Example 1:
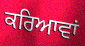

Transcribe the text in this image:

ਕਰਿਆਵਾਂ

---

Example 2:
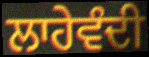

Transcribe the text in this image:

ਲਾਹੇਵੰਦੀ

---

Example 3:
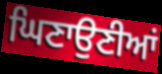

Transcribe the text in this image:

ਘਿਣਾਉਣੀਆਂ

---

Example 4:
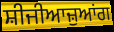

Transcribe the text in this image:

ਸ਼ੀਜੀਆਜ਼ੁਆਂਗ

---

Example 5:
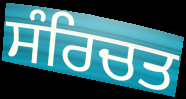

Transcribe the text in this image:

ਸੰਰਿਚਤ